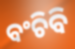
ବଂଚିବି